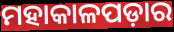
ମହାକାଳପଡ଼ାର